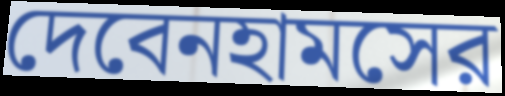
দেবেনহামসের